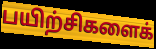
பயிற்சிகளைக்